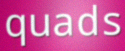
quads